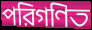
পরিগণিত